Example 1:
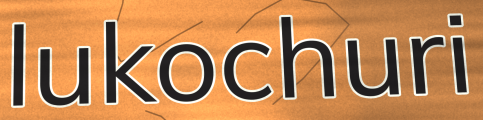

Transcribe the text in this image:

lukochuri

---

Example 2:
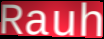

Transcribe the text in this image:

Rauh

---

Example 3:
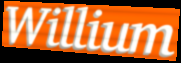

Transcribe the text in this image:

Willium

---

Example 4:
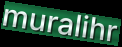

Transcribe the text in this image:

muralihr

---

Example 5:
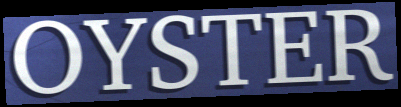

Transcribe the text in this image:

OYSTER